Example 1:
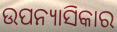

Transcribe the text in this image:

ଉପନ୍ୟାସିକାର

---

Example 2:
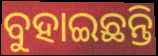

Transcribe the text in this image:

ବୁହାଇଛନ୍ତି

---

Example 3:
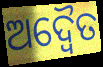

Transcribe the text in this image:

ଅଦ୍ୱୈତ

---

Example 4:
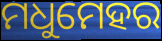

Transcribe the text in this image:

ମଧୁମେହର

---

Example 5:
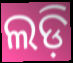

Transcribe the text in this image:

ଲଡ଼ି